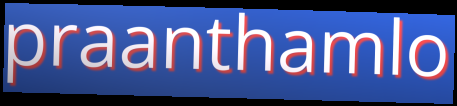
praanthamlo